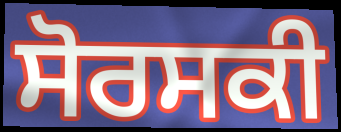
ਸੋਰਸਕੀ